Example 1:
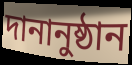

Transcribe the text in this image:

দানানুষ্ঠান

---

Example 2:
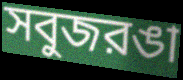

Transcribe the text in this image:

সবুজরঙা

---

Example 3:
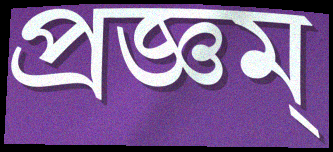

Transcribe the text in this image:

প্রজ্ঞম্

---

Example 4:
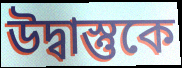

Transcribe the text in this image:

উদ্বাস্তুকে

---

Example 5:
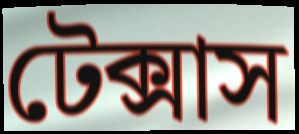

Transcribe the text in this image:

টেক্সাস